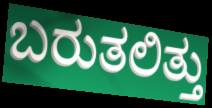
ಬರುತಲಿತ್ತು